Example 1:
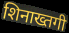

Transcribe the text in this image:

शिनाख्तगी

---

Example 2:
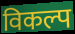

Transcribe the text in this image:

विकल्प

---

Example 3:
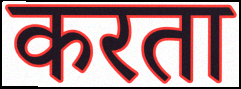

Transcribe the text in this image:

करता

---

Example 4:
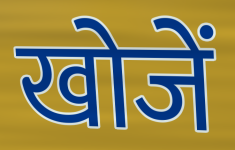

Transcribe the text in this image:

खोजें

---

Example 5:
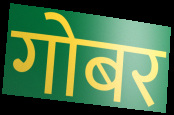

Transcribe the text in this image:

गोबर